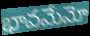
భావమేమో